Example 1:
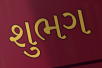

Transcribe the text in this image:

શુભગ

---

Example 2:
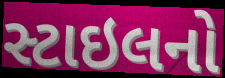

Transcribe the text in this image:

સ્ટાઇલનો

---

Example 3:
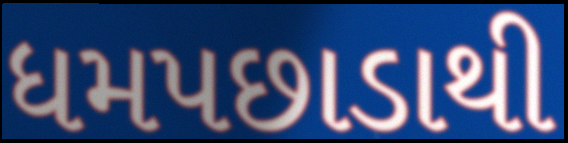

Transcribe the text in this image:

ધમપછાડાથી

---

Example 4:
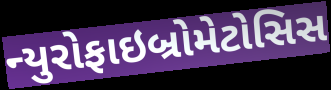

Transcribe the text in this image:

ન્યુરોફાઇબ્રોમેટોસિસ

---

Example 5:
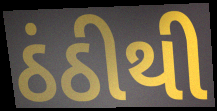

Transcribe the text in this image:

ઠંઠીથી